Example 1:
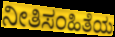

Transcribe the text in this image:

ನೀತಿಸಂಹಿತೆಯ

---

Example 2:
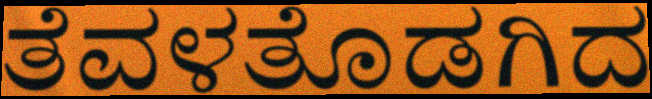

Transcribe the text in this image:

ತೆವಳತೊಡಗಿದ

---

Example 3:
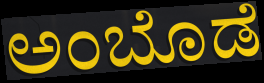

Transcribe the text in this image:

ಅಂಬೊಡೆ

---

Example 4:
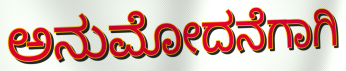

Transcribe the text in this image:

ಅನುಮೋದನೆಗಾಗಿ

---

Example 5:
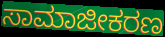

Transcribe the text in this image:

ಸಾಮಾಜೀಕರಣ